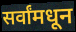
सर्वांमधून